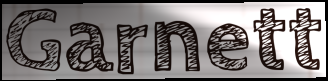
Garnett